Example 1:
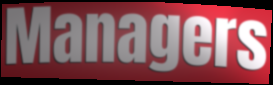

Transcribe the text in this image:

Managers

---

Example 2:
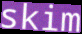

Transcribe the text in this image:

skim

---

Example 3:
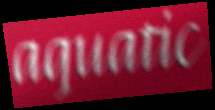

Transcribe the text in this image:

aquatic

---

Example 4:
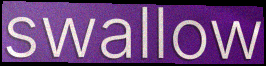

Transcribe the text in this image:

swallow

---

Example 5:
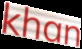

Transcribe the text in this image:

khan